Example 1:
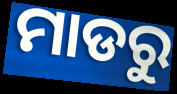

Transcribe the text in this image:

ମାଡରୁ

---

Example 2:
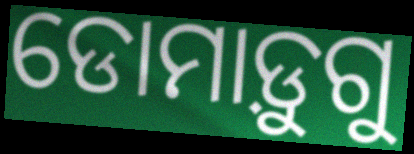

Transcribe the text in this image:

ଡୋମାଡ଼ୁଗୁ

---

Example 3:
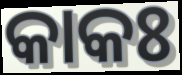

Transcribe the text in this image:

କାକଃ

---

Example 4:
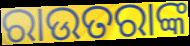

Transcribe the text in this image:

ରାଉତରାଙ୍କ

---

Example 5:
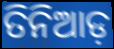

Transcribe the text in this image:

ତିନିଆଡ଼